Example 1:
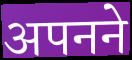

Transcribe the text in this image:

अपनने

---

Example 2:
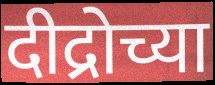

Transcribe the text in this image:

दीद्रोच्या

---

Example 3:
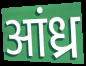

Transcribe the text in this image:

आंध्र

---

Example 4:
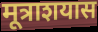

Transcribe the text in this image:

मूत्राशयास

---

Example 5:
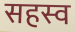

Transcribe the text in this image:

सहस्व